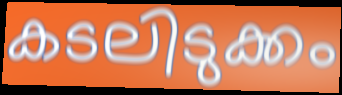
കടലിടുക്കം